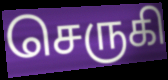
செருகி